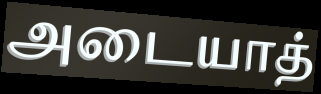
அடையாத்